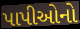
પાપીઓનો